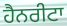
ਹੈਨਰੀਟਾ